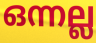
ഒന്നല്ല